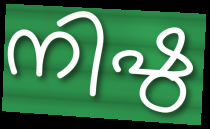
നിഷ്ഠ